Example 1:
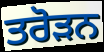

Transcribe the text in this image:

ਤਰੋੜਨ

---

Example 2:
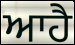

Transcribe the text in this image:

ਆਹੈ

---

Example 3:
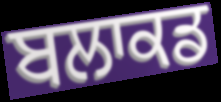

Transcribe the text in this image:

ਬਲਾਕਡ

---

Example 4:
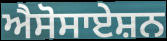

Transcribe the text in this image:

ਐਸੋਸਾਏਸ਼ਨ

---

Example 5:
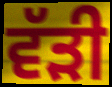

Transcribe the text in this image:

ਵੱੜੀ